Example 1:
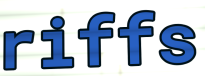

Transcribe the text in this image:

riffs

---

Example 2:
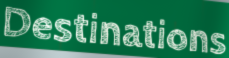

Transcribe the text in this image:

Destinations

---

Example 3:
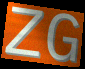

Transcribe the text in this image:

ZG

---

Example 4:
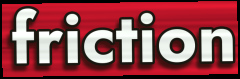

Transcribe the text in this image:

friction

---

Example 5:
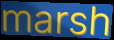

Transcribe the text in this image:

marsh